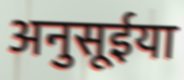
अनुसूईया